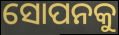
ସୋପନକୁ